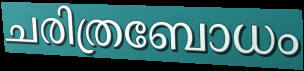
ചരിത്രബോധം